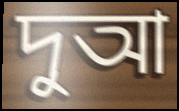
দুআ